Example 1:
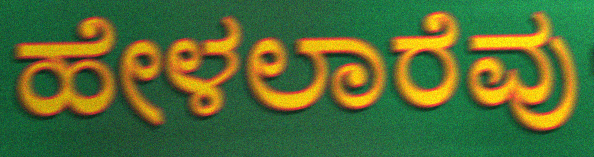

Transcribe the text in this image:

ಹೇಳಲಾರೆವು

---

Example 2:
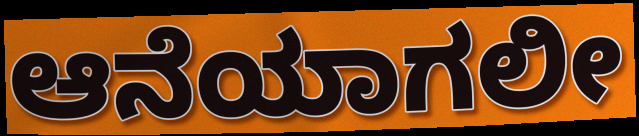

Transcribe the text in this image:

ಆನೆಯಾಗಲೀ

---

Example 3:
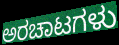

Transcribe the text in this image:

ಅರಚಾಟಗಳು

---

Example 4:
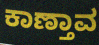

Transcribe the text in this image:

ಕಾಣ್ತಾವ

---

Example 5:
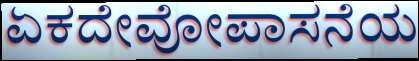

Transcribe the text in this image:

ಏಕದೇವೋಪಾಸನೆಯ